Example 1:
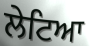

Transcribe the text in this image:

ਲੇਟਿਆ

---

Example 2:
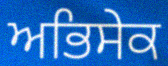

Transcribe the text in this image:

ਅਭਿਸੇਕ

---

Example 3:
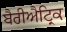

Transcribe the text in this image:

ਬੈਰੀਐਟ੍ਰਿਕ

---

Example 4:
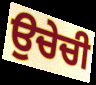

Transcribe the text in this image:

ਉਚੇਚੀ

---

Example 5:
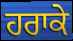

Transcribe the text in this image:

ਹਰਾਕੇ